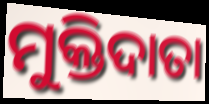
ମୁକ୍ତିଦାତା